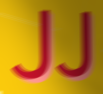
JJ